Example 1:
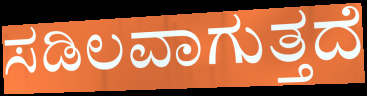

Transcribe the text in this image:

ಸಡಿಲವಾಗುತ್ತದೆ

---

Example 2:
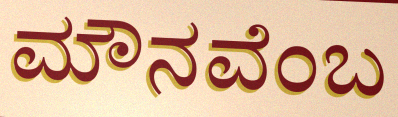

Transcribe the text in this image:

ಮೌನವೆಂಬ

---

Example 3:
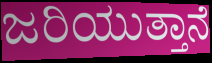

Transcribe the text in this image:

ಜರಿಯುತ್ತಾನೆ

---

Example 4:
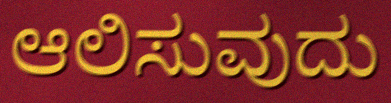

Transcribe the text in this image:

ಆಲಿಸುವುದು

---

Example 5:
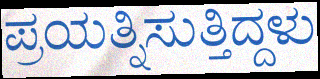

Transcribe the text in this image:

ಪ್ರಯತ್ನಿಸುತ್ತಿದ್ದಳು